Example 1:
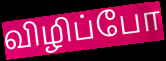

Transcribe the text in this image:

விழிப்போ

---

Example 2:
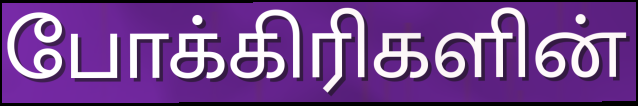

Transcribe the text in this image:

போக்கிரிகளின்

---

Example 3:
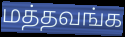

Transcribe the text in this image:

மத்தவங்க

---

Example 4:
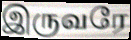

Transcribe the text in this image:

இருவரே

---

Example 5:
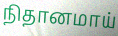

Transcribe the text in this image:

நிதானமாய்